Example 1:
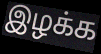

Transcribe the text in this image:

இழக்க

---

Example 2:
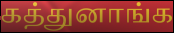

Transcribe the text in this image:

கத்துனாங்க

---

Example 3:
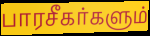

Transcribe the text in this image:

பாரசீகர்களும்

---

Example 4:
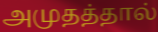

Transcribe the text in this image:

அமுதத்தால்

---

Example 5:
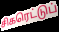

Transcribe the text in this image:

சிகரெட்டுப்